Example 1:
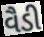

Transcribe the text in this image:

વૈડી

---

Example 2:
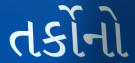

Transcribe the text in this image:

તર્કોનો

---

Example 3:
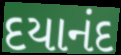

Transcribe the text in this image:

દયાનંદ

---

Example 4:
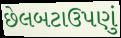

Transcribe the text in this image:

છેલબટાઉપણું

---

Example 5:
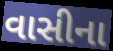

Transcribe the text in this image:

વાસીના